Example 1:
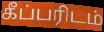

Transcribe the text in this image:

கீப்பரிடம்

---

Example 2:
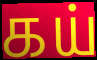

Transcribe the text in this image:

கய்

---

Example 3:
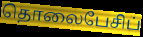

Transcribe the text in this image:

தொலைபேசிப்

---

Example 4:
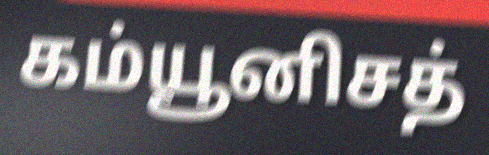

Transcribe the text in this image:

கம்யூனிசத்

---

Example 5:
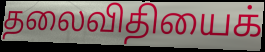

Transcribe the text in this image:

தலைவிதியைக்